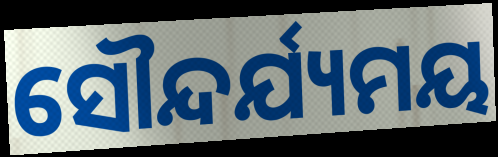
ସୌନ୍ଦର୍ଯ୍ୟମୟ